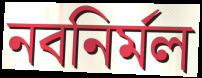
নবনির্মল